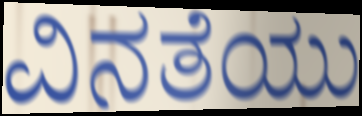
ವಿನತೆಯು